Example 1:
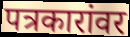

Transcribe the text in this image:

पत्रकारांवर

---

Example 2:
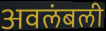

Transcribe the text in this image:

अवलंबली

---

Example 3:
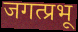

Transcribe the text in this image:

जगत्प्रभू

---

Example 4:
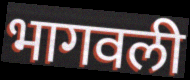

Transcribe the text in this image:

भागवली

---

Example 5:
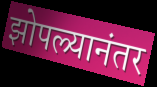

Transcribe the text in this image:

झोपल्यानंतर